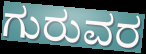
ಗುರುವರ